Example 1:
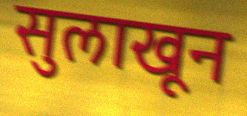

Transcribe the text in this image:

सुलाखून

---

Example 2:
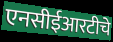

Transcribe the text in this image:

एनसीईआरटीचे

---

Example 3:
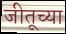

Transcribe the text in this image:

जीतूच्या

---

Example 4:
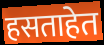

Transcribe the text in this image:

हसताहेत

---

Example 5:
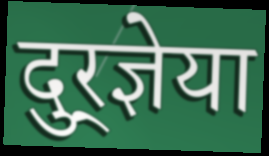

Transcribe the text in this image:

दुर्ज्ञेया